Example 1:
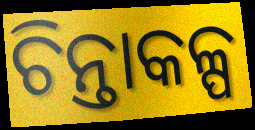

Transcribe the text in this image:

ଚିନ୍ତାକଳ୍ପ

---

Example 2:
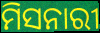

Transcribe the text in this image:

ମିସନାରୀ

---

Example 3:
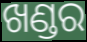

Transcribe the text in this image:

ଖଣ୍ଡର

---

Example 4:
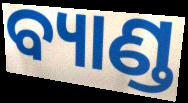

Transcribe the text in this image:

ବ୍ୟାଣ୍ଡ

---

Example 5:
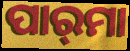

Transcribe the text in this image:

ପାର୍‌ମା